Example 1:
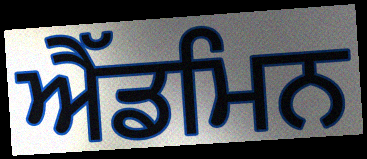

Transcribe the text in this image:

ਐੱਡਮਿਨ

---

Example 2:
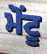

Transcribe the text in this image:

ਮੋਂਟੂ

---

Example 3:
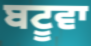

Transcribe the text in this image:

ਬਟੂਵਾ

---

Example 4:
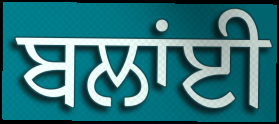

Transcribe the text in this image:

ਬਲਾਂਈ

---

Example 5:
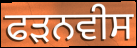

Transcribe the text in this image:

ਫੜਨਵੀਸ